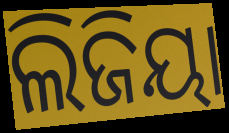
ଲିଜିୟା